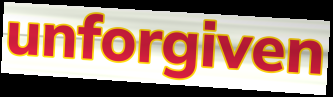
unforgiven